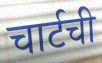
चार्टची